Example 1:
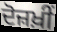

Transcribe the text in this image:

ਦੋਜ਼ਖ਼ੀਂ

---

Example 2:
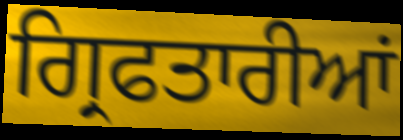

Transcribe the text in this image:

ਗ੍ਰਿਫਤਾਰੀਆਂ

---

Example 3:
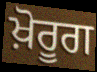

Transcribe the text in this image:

ਖ਼ੋਰੂਗ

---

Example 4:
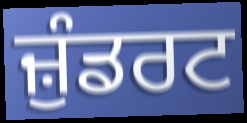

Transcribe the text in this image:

ਜ਼ੁੰਡਰਟ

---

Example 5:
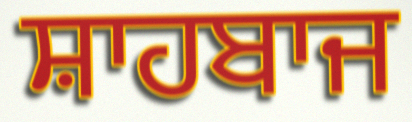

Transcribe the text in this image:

ਸ਼ਾਹਬਾਜ